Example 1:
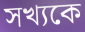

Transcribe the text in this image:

সখ্যকে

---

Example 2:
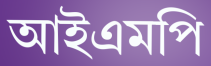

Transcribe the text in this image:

আইএমপি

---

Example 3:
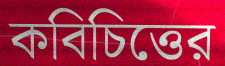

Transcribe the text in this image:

কবিচিত্তের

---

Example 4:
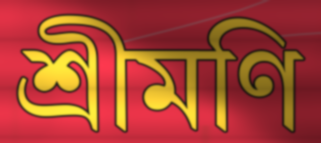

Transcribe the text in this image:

শ্রীমণি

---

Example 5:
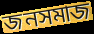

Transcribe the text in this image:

জনসমাজ